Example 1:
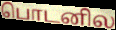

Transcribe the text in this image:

பொடனில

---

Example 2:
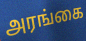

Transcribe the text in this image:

அரங்கை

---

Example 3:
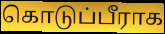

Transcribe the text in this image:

கொடுப்பீராக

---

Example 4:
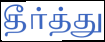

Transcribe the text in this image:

தீர்த்து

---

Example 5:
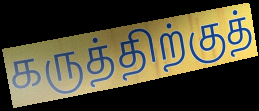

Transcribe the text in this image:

கருத்திற்குத்